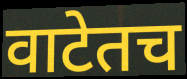
वाटेतच